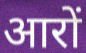
आरों